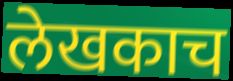
लेखकाच